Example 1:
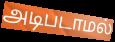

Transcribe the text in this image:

அடிபடாமல்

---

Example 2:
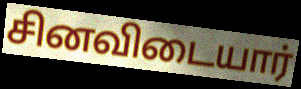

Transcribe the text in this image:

சினவிடையார்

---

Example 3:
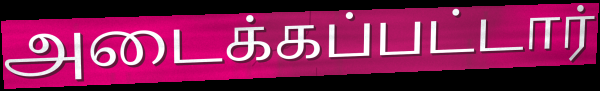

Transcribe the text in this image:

அடைக்கப்பட்டார்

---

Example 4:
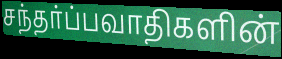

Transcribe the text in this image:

சந்தர்ப்பவாதிகளின்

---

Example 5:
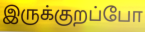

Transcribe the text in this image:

இருக்குறப்போ